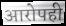
आरोपही